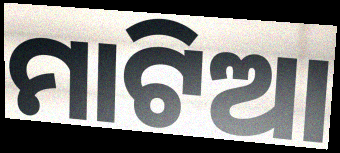
ମାଟିଆ